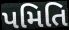
પમિતિ